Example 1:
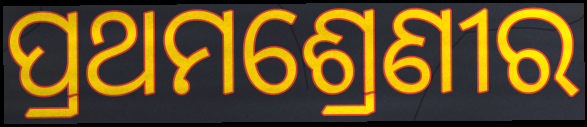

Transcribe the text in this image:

ପ୍ରଥମଶ୍ରେଣୀର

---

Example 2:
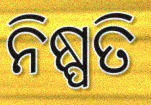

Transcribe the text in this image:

ନିଷ୍ପତି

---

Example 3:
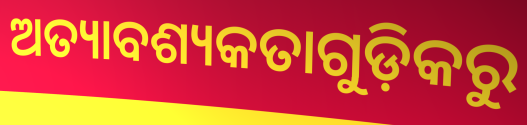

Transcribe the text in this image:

ଅତ୍ୟାବଶ୍ୟକତାଗୁଡ଼ିକରୁ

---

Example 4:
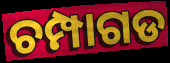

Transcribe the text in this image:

ଚମ୍ପାଗଡ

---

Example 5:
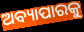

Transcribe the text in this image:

ଅବ୍ୟାପାରକୁ